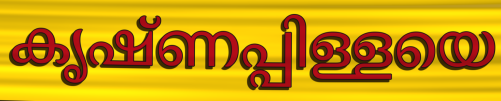
കൃഷ്ണപ്പിള്ളയെ